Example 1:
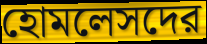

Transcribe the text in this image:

হোমলেসদের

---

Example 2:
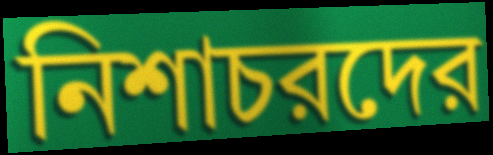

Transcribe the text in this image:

নিশাচরদের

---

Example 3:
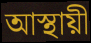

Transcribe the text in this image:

আস্থায়ী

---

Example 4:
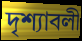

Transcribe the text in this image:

দৃশ্যাবলী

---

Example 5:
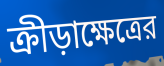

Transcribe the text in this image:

ক্রীড়াক্ষেত্রের